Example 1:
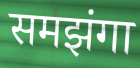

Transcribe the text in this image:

समझंगा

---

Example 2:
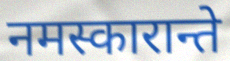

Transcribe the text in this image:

नमस्कारान्ते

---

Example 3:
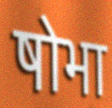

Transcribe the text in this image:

षोभा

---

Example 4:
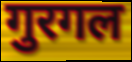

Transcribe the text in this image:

गुरगल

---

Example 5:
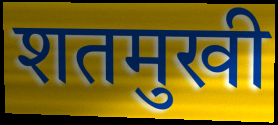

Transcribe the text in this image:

शतमुखी